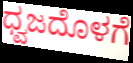
ಧ್ವಜದೊಳಗೆ